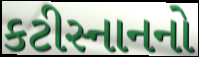
કટીસ્નાનનો